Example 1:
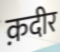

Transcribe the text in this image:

क़दीर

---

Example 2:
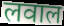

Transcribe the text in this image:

लवाल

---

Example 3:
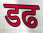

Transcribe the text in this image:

डढ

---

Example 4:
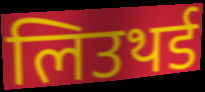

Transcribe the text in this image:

लिउथर्ड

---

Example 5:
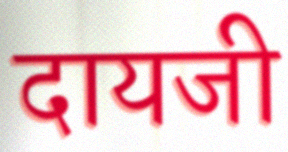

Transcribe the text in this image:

दायजी